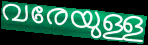
വരേയുള്ള